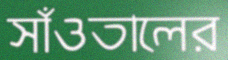
সাঁওতালের